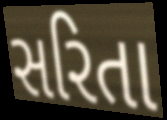
સરિતા